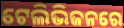
ଟେଲିଭିଜନରେ